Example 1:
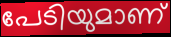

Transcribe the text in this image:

പേടിയുമാണ്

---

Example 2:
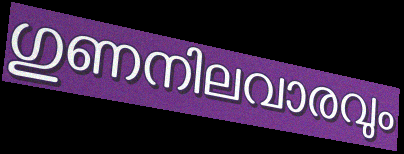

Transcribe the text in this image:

ഗുണനിലവാരവും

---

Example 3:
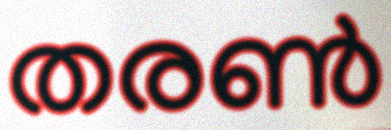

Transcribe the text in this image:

തരൺ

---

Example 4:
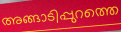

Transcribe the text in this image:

അങ്ങാടിപ്പുറത്തെ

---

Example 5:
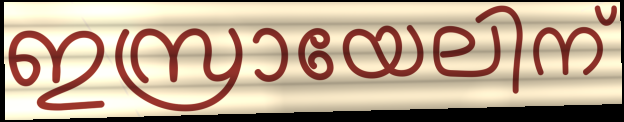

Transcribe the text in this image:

ഇസ്രായേലിന്